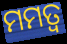
ମମତ୍ୱ